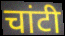
चांटी